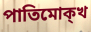
পাতিমোক্খ